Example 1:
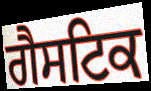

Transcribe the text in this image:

ਗੈਸਟਿਕ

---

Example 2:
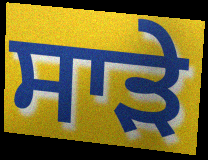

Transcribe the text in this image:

ਸਾੜੇ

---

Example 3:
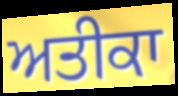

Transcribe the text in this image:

ਅਤੀਕਾ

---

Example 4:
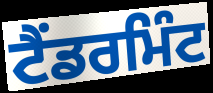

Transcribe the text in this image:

ਟੈਂਡਰਮਿੰਟ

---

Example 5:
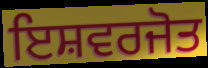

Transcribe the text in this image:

ਇਸ਼ਵਰਜੋਤ